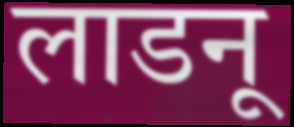
लाडनू